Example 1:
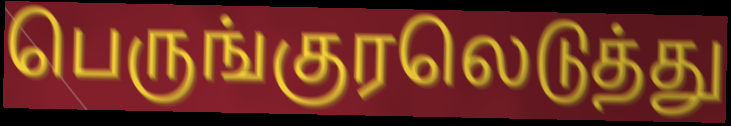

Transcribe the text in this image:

பெருங்குரலெடுத்து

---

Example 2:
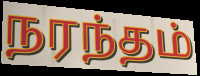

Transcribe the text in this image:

நரந்தம்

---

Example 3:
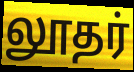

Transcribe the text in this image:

லூதர்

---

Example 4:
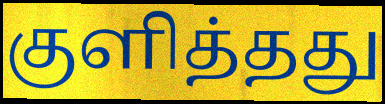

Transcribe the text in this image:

குளித்தது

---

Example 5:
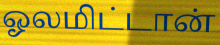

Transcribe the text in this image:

ஓலமிட்டான்